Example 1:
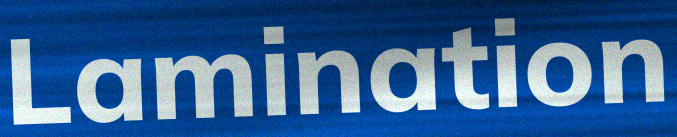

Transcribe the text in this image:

Lamination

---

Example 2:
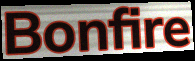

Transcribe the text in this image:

Bonfire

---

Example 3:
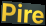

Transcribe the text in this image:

Pire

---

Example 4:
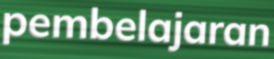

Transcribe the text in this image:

pembelajaran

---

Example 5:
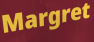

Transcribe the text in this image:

Margret